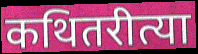
कथितरीत्या